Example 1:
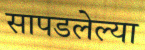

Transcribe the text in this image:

सापडलेल्‍या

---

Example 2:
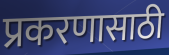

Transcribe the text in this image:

प्रकरणासाठी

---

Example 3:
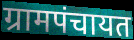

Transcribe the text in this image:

ग्रामपंचायत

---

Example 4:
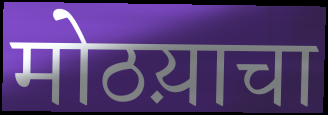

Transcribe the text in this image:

मोठय़ाचा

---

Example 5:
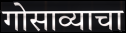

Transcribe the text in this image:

गोसाव्याचा